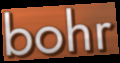
bohr